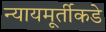
न्यायमूर्तीकडे